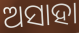
ଅସାହା